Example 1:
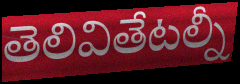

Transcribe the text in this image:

తెలివితేటల్నీ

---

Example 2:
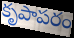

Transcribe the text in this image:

కృపాపరం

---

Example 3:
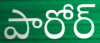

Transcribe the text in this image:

పారోర్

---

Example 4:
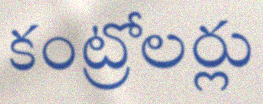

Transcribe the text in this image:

కంట్రోలర్లు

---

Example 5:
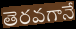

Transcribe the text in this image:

తెరవగానే